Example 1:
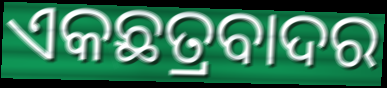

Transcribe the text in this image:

ଏକଛତ୍ରବାଦର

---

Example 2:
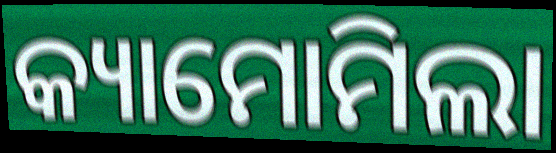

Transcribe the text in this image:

କ୍ୟାମୋମିଲା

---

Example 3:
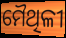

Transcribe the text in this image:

ମୈଥିଳୀ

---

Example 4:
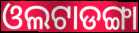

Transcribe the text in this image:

ଓଲଟାଡଙ୍ଗା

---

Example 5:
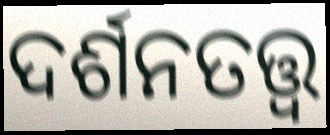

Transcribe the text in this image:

ଦର୍ଶନତତ୍ତ୍ଵ